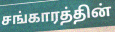
சங்காரத்தின்